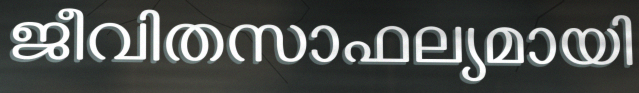
ജീവിതസാഫല്യമായി